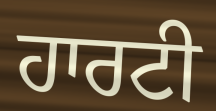
ਹਾਰਟੀ